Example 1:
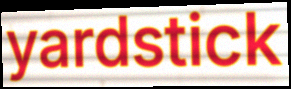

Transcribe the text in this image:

yardstick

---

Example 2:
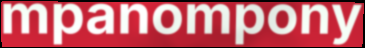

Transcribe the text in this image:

mpanompony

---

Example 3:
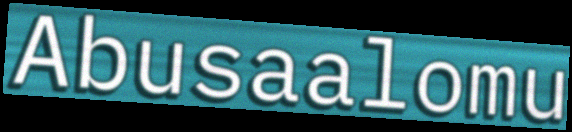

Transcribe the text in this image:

Abusaalomu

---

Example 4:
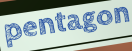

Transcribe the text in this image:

pentagon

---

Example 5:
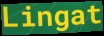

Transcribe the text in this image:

Lingat